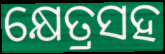
କ୍ଷେତ୍ରସହ